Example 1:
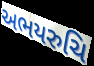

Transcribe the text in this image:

અભયરુચિ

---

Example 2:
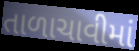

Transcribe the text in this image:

તાળાચાવીમાં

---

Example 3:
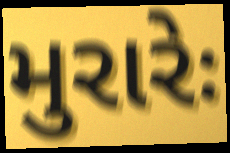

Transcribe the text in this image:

મુરારેઃ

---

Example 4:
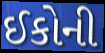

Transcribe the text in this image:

ઈકોની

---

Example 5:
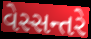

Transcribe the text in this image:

વેસ્સન્તરે